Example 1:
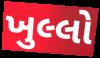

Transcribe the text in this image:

ખુલ્લો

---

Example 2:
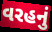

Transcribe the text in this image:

વરહનું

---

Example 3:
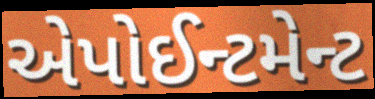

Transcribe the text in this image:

એપોઈન્ટમેન્ટ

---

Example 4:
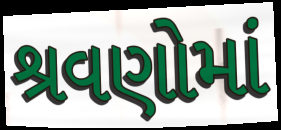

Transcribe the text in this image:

શ્રવણોમાં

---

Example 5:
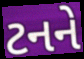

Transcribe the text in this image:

ટનને